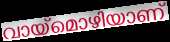
വായ്മൊഴിയാണ്